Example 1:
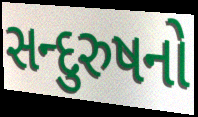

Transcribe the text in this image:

સન્દુરુષનો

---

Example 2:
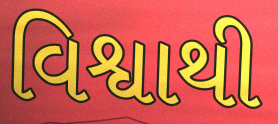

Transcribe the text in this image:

વિશ્વાથી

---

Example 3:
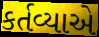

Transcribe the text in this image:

કર્તવ્યાએ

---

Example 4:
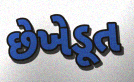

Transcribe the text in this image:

છેખેડૂત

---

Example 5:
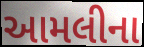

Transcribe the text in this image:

આમલીના